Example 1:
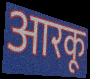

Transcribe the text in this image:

आरकू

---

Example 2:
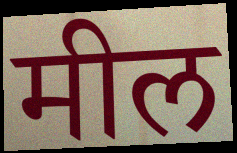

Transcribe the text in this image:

मील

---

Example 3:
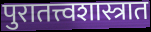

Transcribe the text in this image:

पुरातत्त्वशास्त्रात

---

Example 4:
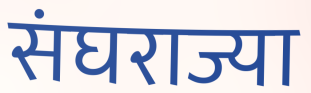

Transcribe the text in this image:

संघराज्या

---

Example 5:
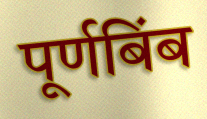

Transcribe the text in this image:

पूर्णबिंब